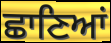
ਛਾਣਿਆਂ